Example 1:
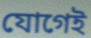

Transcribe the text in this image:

যোগেই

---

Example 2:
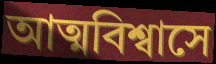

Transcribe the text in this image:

আত্মবিশ্বাসে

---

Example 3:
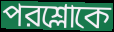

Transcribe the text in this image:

পরশ্লোকে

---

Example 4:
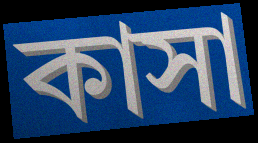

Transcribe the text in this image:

কাসা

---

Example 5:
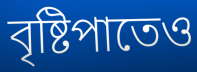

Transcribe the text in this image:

বৃষ্টিপাতেও